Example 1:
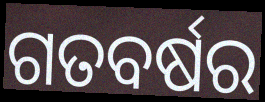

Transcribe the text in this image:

ଗତବର୍ଷର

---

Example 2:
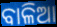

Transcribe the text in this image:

ବାଳିଆ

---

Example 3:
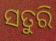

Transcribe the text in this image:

ସତୁରି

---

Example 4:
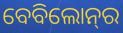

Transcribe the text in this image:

ବେବିଲୋନ୍‌ର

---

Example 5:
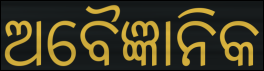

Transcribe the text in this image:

ଅବୈଜ୍ଞାନିକ